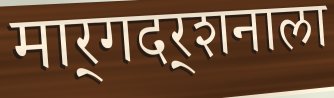
मार्गदर्शनाला